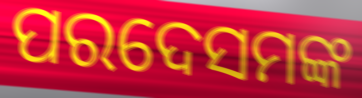
ପରଦେସମଙ୍କ